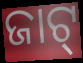
ଜାଟ୍